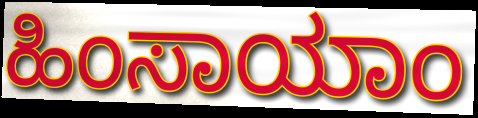
ಹಿಂಸಾಯಾಂ